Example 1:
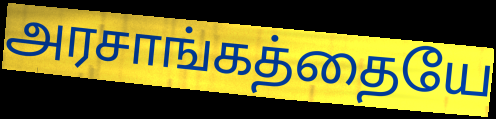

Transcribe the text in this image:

அரசாங்கத்தையே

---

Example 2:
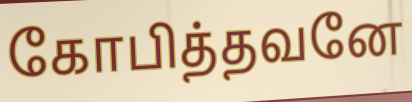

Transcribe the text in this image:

கோபித்தவனே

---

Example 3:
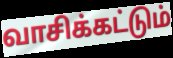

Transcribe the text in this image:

வாசிக்கட்டும்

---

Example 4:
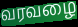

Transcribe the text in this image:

வரவழை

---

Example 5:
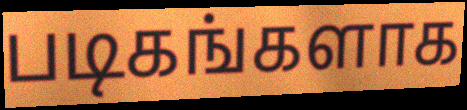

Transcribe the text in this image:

படிகங்களாக